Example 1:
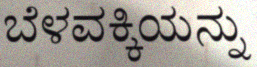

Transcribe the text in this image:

ಬೆಳವಕ್ಕಿಯನ್ನು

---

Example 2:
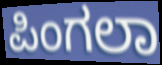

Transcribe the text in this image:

ಪಿಂಗಲಾ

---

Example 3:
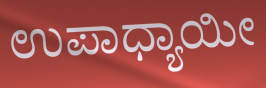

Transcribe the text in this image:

ಉಪಾಧ್ಯಾಯೀ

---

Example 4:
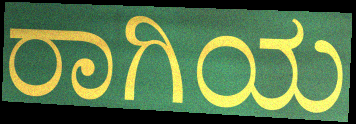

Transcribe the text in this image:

ರಾಗಿಯ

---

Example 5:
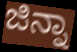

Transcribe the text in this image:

ಜಿನ್ನಾ